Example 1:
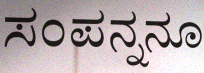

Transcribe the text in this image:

ಸಂಪನ್ನನೂ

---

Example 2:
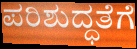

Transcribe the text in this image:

ಪರಿಶುದ್ಧತೆಗೆ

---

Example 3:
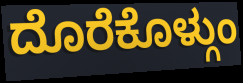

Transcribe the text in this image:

ದೊರೆಕೊಳ್ಗುಂ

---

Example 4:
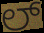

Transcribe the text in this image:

ಲ್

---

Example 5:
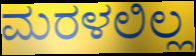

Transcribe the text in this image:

ಮರಳಲಿಲ್ಲ